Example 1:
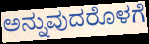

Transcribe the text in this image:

ಅನ್ನುವುದರೊಳಗೆ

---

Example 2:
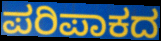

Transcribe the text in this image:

ಪರಿಪಾಕದ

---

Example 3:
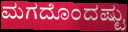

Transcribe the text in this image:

ಮಗದೊಂದಷ್ಟು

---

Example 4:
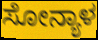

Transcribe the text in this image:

ಸೋನ್ಯಾಳ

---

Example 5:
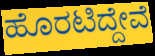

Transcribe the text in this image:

ಹೊರಟಿದ್ದೇವೆ